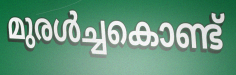
മുരൾച്ചകൊണ്ട്